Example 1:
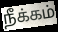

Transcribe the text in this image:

நீக்கம்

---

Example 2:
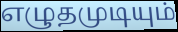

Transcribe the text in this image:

எழுதமுடியும்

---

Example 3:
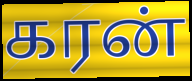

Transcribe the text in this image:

கரன்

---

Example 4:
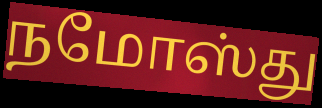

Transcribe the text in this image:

நமோஸ்து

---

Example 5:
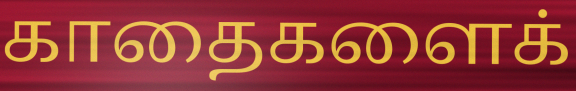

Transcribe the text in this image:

காதைகளைக்